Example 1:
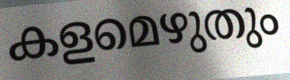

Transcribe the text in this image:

കളമെഴുതും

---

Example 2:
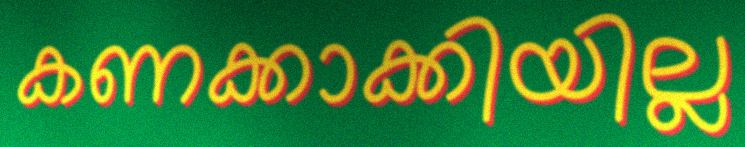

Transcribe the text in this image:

കണക്കാക്കിയില്ല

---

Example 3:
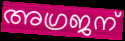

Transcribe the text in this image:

അഗ്രജന്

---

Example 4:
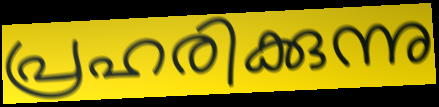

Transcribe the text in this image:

പ്രഹരിക്കുന്നു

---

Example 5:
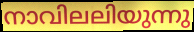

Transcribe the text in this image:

നാവിലലിയുന്നു